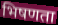
भिषणता